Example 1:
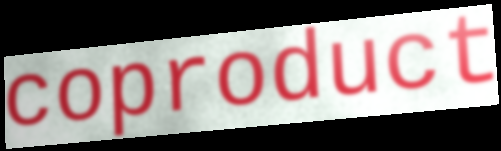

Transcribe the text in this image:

coproduct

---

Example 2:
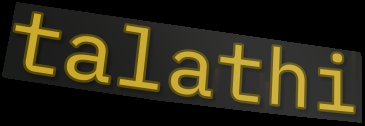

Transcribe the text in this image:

talathi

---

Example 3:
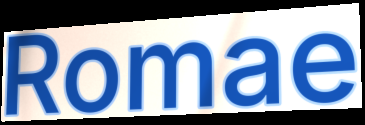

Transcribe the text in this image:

Romae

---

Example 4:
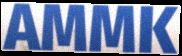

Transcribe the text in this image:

AMMK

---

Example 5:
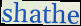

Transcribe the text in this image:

shathe